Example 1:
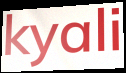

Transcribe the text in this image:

kyali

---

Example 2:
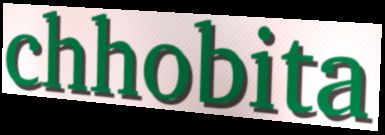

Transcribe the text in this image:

chhobita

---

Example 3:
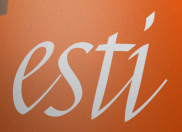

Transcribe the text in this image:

esti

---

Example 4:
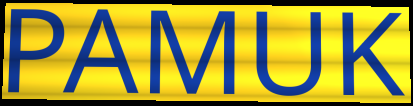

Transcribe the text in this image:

PAMUK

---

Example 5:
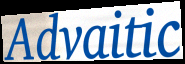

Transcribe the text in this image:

Advaitic